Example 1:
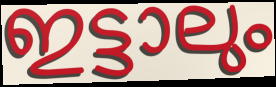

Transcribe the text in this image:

ഇട്ടാലും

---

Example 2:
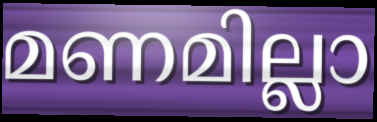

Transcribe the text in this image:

മണമില്ലാ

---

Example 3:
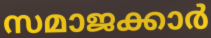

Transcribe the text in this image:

സമാജക്കാർ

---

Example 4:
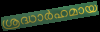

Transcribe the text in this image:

ശ്രദ്ധാർഹമായ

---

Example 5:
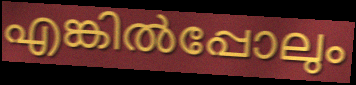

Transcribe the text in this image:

എങ്കിൽപ്പോലും